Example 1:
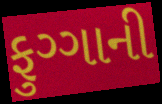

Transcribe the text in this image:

ફુગ્ગાની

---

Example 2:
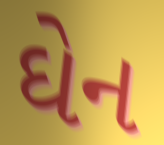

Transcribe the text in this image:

ઘેન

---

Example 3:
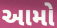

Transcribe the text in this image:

આમો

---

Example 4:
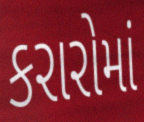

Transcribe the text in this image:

કરારોમાં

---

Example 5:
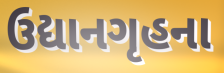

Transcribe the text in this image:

ઉદ્યાનગૃહના